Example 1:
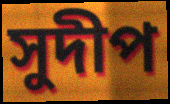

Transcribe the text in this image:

সুদীপ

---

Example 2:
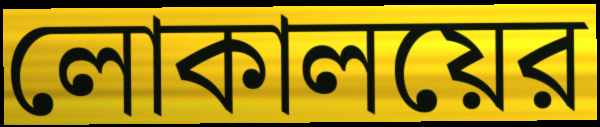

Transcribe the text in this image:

লোকালয়ের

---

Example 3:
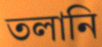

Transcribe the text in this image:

তলানি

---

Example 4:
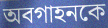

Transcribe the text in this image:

অবগাহনকে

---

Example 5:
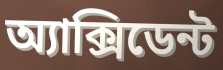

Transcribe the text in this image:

অ্যাক্সিডেন্ট